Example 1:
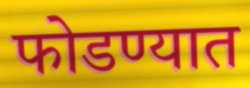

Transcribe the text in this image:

फोडण्यात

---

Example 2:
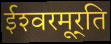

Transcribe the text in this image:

ईश्वरमूर्ति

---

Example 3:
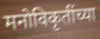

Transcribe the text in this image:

मनोविकृतींच्या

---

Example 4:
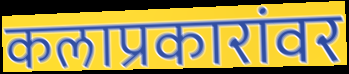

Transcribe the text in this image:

कलाप्रकारांवर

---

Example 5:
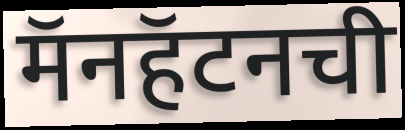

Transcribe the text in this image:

मॅनहॅटनची